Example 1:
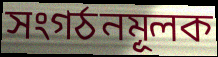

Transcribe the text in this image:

সংগঠনমূলক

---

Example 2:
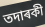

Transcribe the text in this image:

তদাৰকী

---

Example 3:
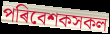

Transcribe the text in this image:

পৰিবেশকসকল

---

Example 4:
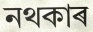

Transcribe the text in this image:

নথকাৰ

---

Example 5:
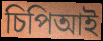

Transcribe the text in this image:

চিপিআই